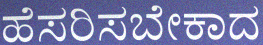
ಹೆಸರಿಸಬೇಕಾದ